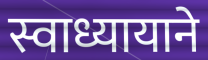
स्वाध्यायाने